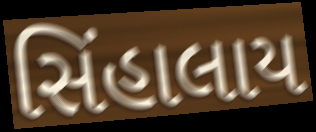
સિંહાલાય